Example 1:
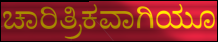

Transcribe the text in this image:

ಚಾರಿತ್ರಿಕವಾಗಿಯೂ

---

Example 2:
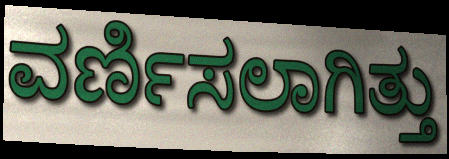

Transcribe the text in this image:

ವರ್ಣಿಸಲಾಗಿತ್ತು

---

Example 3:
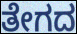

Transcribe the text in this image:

ತೇಗದ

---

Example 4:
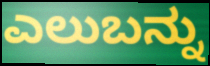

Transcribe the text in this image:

ಎಲುಬನ್ನು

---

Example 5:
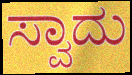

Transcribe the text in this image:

ಸ್ವಾದು